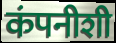
कंपनीशी